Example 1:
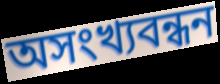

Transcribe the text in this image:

অসংখ্যবন্ধন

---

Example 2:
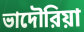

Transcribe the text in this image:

ভাদৌরিয়া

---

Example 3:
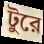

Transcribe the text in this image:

টুরে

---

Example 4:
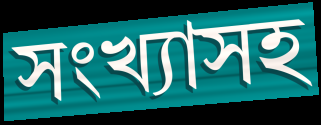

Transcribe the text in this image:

সংখ্যাসহ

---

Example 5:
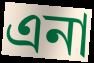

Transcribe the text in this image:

এনা